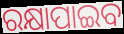
ରକ୍ଷାପାଇବ